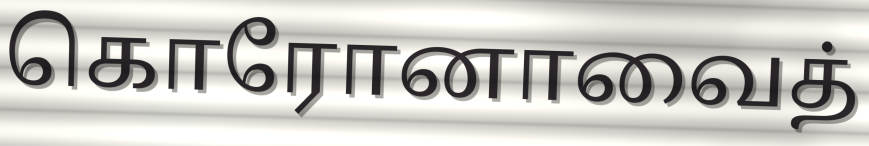
கொரோனாவைத்